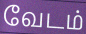
வேடம்